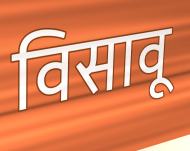
विसावू